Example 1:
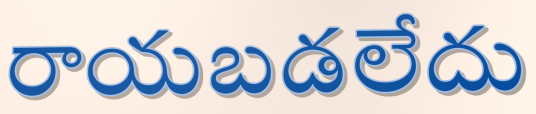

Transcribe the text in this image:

రాయబడలేదు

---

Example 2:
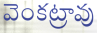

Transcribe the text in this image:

వెంకట్రావు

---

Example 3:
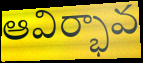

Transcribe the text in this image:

ఆవిర్భావ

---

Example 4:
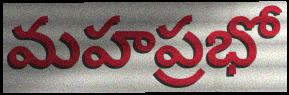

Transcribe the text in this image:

మహప్రభో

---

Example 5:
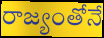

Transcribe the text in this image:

రాజ్యంతోనే